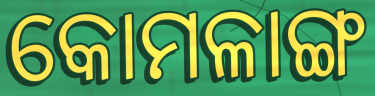
କୋମଳାଙ୍ଗ